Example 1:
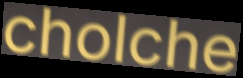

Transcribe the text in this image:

cholche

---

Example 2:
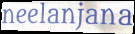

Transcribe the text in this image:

neelanjana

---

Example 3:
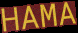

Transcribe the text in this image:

HAMA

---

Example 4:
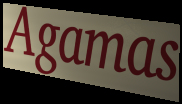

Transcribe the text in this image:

Agamas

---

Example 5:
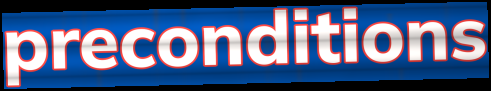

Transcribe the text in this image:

preconditions